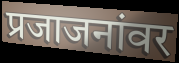
प्रजाजनांवर